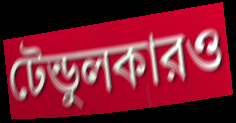
টেন্ডুলকারও